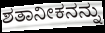
ಶತಾನೀಕನನ್ನು